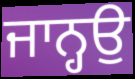
ਜਾਨ੍ਹਉ